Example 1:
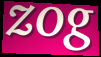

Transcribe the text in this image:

zog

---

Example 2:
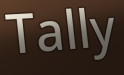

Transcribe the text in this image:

Tally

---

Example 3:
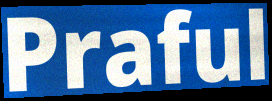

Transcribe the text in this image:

Praful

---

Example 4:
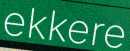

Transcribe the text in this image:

ekkere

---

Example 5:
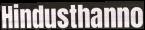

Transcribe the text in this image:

Hindusthanno